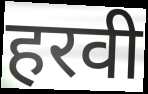
हरवी